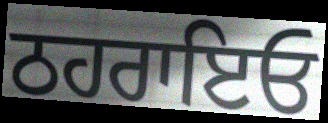
ਠਹਰਾਇਓ